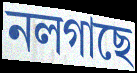
নলগাছে